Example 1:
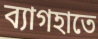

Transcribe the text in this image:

ব্যাগহাতে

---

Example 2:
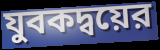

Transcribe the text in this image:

যুবকদ্বয়ের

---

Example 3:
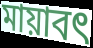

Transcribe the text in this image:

মায়াবৎ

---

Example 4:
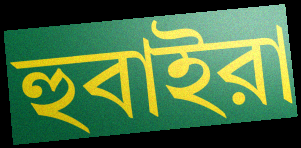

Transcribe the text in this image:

হুবাইরা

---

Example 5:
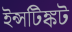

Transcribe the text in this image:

ইন্সটিঙ্কট